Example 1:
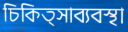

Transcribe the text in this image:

চিকিত্সাব্যবস্থা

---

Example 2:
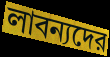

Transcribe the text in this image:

লাবন্যদের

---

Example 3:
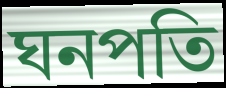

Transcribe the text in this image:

ঘনপতি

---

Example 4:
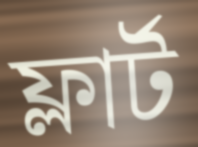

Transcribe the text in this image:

ফ্লার্ট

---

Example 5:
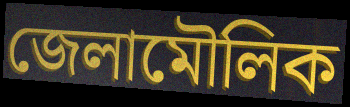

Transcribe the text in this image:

জেলামৌলিক